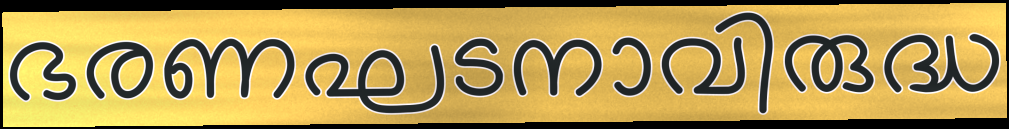
ഭരണഘടനാവിരുദ്ധ